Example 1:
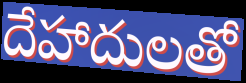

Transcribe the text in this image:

దేహాదులతో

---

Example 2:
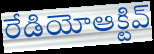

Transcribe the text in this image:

రేడియోఆక్టివ్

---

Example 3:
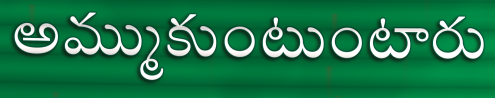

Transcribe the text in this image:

అమ్ముకుంటుంటారు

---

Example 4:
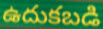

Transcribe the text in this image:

ఉదుకబడి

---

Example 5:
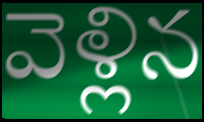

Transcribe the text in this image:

వెళ్లిన